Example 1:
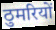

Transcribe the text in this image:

ठुमरियों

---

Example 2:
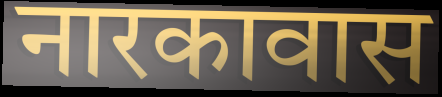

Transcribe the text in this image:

नारकावास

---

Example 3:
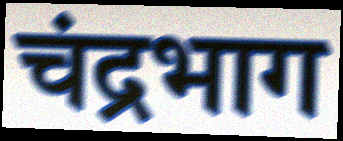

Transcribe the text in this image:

चंद्रभाग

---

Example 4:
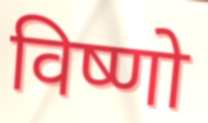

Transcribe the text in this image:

विष्णो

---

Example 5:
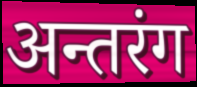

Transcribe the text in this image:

अन्तरंग